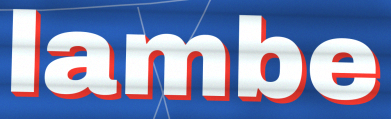
lambe